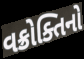
વક્રોક્તિનો